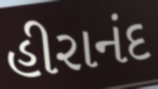
હીરાનંદ